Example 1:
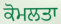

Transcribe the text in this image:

ਕੋਮਲਤਾ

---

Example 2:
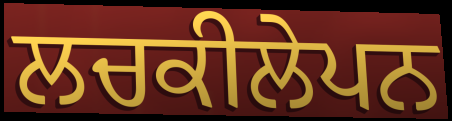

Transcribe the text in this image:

ਲਚਕੀਲੇਪਨ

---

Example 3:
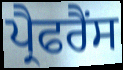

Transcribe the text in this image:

ਪ੍ਰੈਫਰੈਂਸ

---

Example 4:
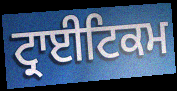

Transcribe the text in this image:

ਟ੍ਰਾਈਟਿਕਮ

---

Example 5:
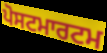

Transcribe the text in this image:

ਪੋਸਟਮਾਰਟਮ